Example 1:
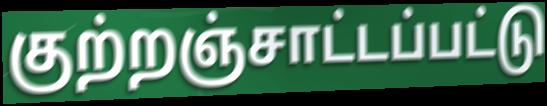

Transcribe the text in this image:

குற்றஞ்சாட்டப்பட்டு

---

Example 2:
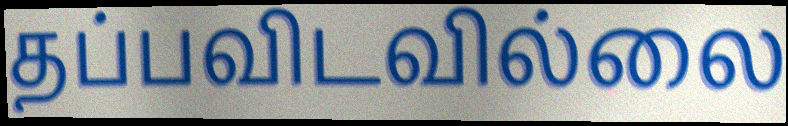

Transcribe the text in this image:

தப்பவிடவில்லை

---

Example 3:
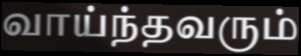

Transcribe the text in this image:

வாய்ந்தவரும்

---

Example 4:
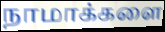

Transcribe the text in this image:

நாமாக்களை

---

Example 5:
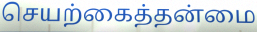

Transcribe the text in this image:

செயற்கைத்தன்மை